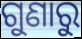
ଗୁଣାରୁ